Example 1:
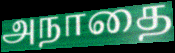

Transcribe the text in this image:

அநாதை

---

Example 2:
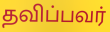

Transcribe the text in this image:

தவிப்பவர்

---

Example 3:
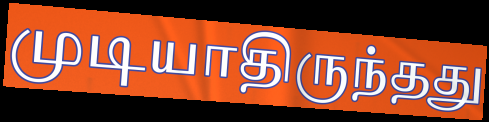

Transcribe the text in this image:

முடியாதிருந்தது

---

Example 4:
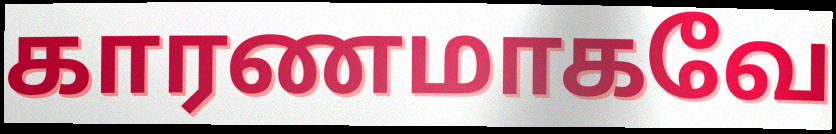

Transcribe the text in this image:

காரணமாகவே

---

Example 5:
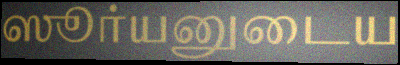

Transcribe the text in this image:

ஸூர்யனுடைய